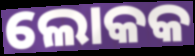
ଲୋକକ